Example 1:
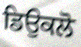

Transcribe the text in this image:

ਡਿਉਕਲੋ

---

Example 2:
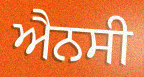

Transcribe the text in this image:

ਐਨਸੀ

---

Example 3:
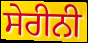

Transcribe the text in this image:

ਸੇਰੀਨੀ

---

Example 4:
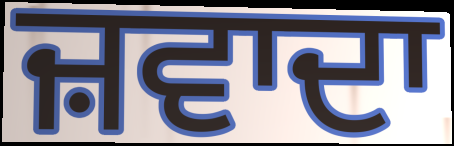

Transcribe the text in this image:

ਜ਼ਵਾਦਾ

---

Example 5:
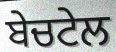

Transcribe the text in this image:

ਬੇਚਟੇਲ